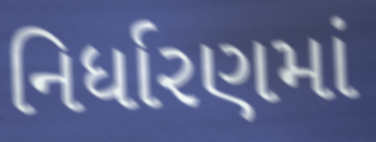
નિર્ધારણમાં